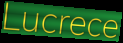
Lucrece